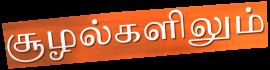
சூழல்களிலும்